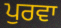
ਪੁਰਵਾ